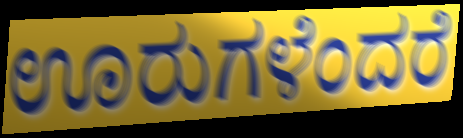
ಊರುಗಳೆಂದರೆ